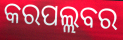
କରପଲ୍ଲବର